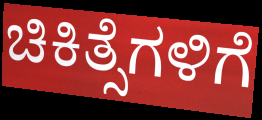
ಚಿಕಿತ್ಸೆಗಳಿಗೆ